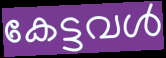
കേട്ടവൾ